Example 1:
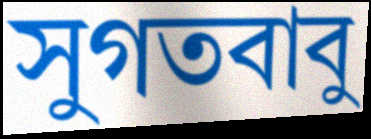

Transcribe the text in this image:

সুগতবাবু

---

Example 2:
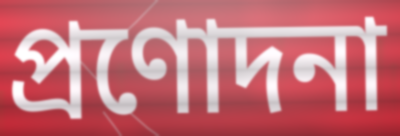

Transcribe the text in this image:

প্রণোদনা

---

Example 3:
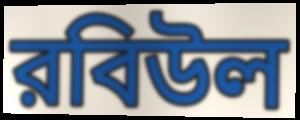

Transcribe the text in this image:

রবিউল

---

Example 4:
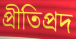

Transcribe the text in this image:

প্রীতিপ্রদ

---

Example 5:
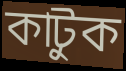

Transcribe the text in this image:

কাটুক